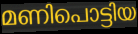
മണിപൊട്ടിയ